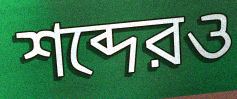
শব্দেরও